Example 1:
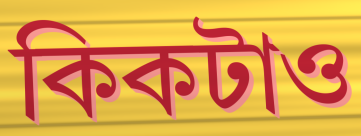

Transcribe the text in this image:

কিকটাও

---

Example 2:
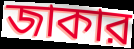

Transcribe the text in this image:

জাকার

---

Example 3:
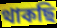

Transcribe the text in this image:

থাকছি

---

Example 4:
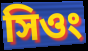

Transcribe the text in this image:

সিওং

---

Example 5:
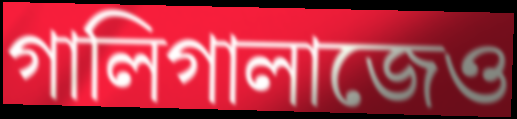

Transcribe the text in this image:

গালিগালাজেও